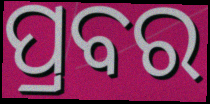
ପ୍ରବର